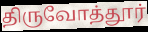
திருவோத்தூர்